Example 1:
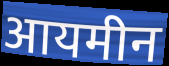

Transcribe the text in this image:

आयमीन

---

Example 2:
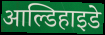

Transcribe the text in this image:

आल्डिहाइडे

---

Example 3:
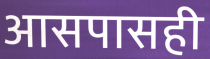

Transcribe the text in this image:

आसपासही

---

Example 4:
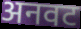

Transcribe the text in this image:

अनवट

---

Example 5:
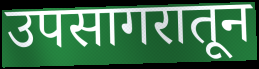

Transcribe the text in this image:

उपसागरातून